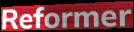
Reformer